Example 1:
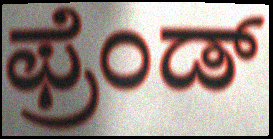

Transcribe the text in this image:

ಫ್ರೆಂಡ್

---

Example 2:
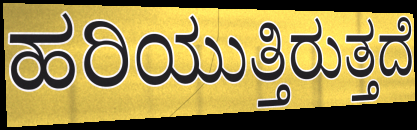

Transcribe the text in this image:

ಹರಿಯುತ್ತಿರುತ್ತದೆ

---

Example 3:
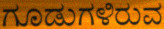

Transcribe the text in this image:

ಗೂಡುಗಳಿರುವ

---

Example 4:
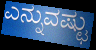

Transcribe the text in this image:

ಎನ್ನುವಷ್ಟು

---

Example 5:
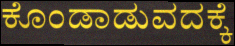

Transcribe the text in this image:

ಕೊಂಡಾಡುವದಕ್ಕೆ